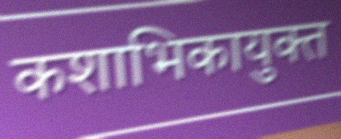
कशाभिकायुक्त